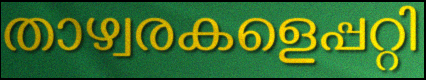
താഴ്വരകളെപ്പറ്റി